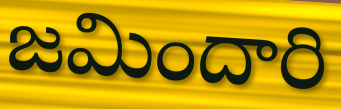
జమిందారి